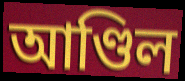
আণ্ডিল